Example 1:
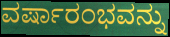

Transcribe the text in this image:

ವರ್ಷಾರಂಭವನ್ನು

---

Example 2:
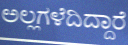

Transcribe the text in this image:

ಅಲ್ಲಗಳೆದಿದ್ದಾರೆ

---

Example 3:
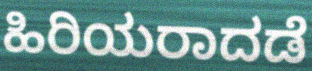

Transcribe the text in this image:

ಹಿರಿಯರಾದಡೆ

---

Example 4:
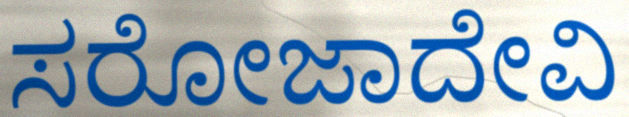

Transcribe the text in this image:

ಸರೋಜಾದೇವಿ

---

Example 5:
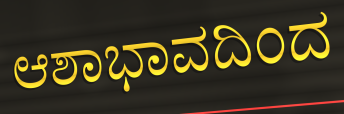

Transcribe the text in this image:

ಆಶಾಭಾವದಿಂದ